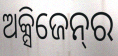
ଅକ୍ସିଜେନ୍‌ର